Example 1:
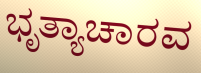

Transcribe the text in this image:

ಭೃತ್ಯಾಚಾರವ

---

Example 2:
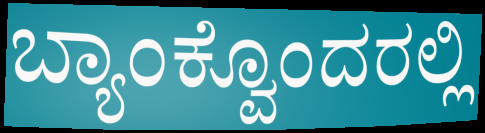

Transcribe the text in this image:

ಬ್ಯಾಂಕ್ವೊಂದರಲ್ಲಿ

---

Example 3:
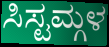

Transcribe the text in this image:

ಸಿಸ್ಟಮ್ಗಳ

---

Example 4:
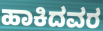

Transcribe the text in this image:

ಹಾಕಿದವರ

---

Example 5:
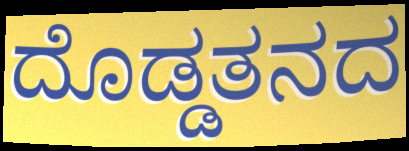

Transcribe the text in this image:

ದೊಡ್ಡತನದ